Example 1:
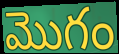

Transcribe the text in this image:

మొగం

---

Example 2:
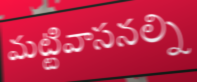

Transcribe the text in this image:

మట్టివాసనల్ని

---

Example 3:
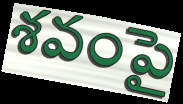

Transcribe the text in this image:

శవంపై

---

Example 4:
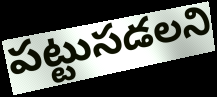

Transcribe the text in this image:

పట్టుసడలని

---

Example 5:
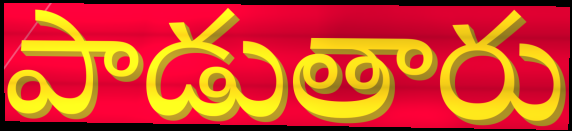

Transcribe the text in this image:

పాడుతారు